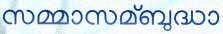
സമ്മാസമ്ബുദ്ധാ